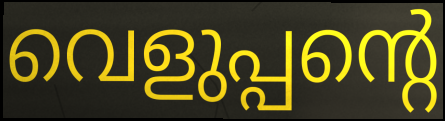
വെളുപ്പന്റെ